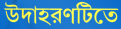
উদাহরণটিতে